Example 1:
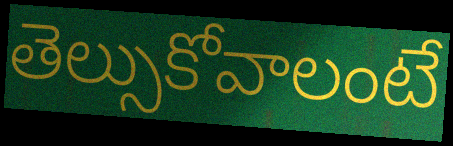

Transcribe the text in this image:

తెల్సుకోవాలంటే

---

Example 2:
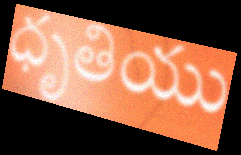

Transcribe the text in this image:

ధృతియు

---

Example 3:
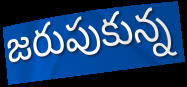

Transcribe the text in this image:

జరుపుకున్న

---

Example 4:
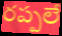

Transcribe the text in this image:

రప్పలే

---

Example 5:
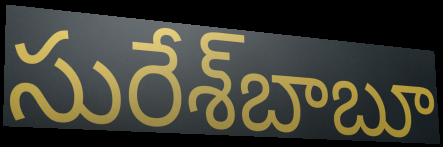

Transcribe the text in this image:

సురేశ్‌బాబూ